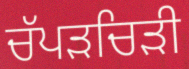
ਚੱਪੜਚਿੜੀ